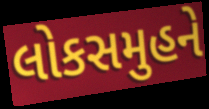
લોકસમુહને